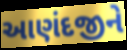
આણંદજીને